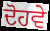
ਦੋਹਵੇ